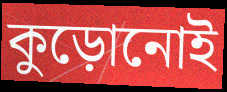
কুড়োনোই